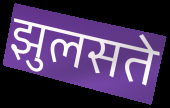
झुलसते